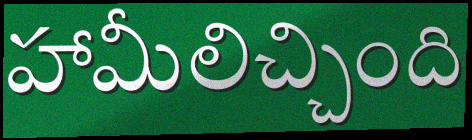
హామీలిచ్చింది